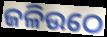
ଜଳିଉଠେ